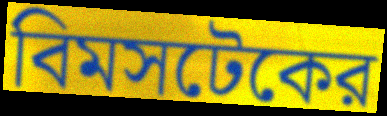
বিমসটেকের